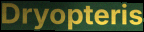
Dryopteris